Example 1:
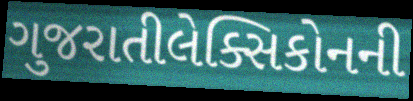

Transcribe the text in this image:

ગુજરાતીલેક્સિકોનની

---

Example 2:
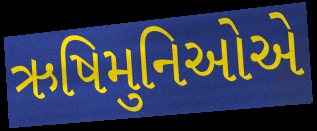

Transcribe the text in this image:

ઋષિમુનિઓએ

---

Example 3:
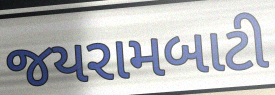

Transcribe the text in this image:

જયરામબાટી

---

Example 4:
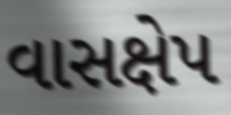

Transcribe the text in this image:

વાસક્ષેપ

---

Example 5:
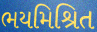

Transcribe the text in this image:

ભયમિશ્રિત